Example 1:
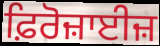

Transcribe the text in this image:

ਫ਼ਿਰੋਜ਼ਾਈਜ਼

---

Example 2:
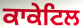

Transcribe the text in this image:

ਕਾਕੇਟਿਲ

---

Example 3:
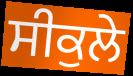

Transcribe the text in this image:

ਸੀਕੁਲੇ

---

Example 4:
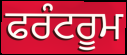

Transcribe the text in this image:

ਫਰੰਟਰੂਮ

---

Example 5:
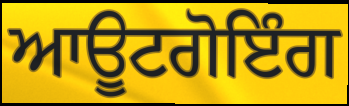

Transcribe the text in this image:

ਆਊਟਗੋਇੰਗ